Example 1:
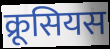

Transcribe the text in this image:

क्रूसियस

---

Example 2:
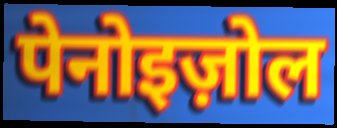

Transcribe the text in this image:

पेनोइज़ोल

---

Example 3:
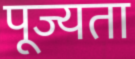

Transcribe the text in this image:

पूज्यता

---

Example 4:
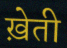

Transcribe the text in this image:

ख़ेती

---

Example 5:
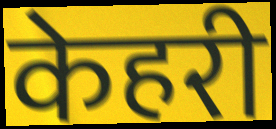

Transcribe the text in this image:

केहरी